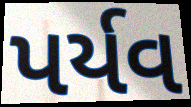
પર્યવ